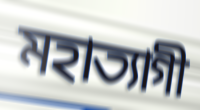
মহাত্যাগী